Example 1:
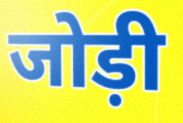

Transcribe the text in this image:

जोड़ी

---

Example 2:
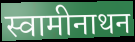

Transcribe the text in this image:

स्वामीनाथन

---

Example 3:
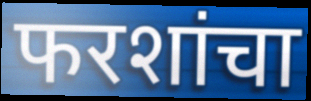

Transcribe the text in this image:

फरशांचा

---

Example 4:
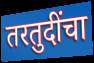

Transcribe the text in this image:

तरतुदींचा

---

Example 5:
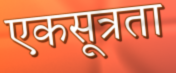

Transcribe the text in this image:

एकसूत्रता